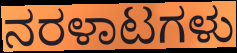
ನರಳಾಟಗಳು